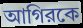
আগিরকে